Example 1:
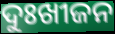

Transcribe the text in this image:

ଦୁଃଖୀଜନ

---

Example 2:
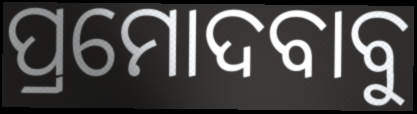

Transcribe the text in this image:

ପ୍ରମୋଦବାବୁ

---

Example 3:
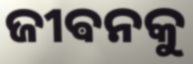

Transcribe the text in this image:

ଜୀଵନକୁ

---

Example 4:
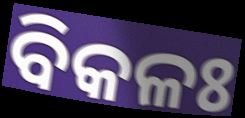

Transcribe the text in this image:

ବିକଳଃ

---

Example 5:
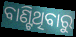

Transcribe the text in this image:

ବାଣ୍ଟିଥିବାରୁ